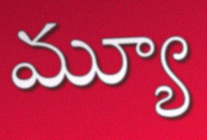
మ్యూ